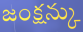
జంక్షన్కు